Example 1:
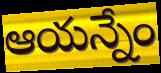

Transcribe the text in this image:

ఆయన్నేం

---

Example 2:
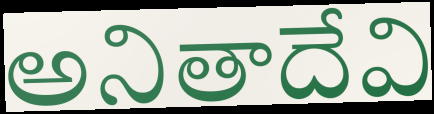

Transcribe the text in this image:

అనితాదేవి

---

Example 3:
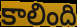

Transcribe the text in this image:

కాలింది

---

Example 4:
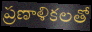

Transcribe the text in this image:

ప్రణాళికలతో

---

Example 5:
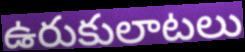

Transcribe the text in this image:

ఉరుకులాటలు